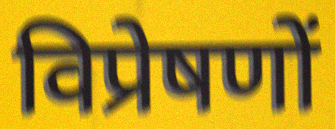
विप्रेषणों